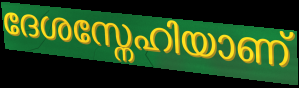
ദേശസ്നേഹിയാണ്